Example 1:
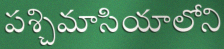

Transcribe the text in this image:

పశ్చిమాసియాలోని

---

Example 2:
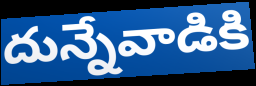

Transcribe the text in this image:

దున్నేవాడికి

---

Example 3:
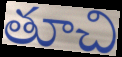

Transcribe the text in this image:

తూచి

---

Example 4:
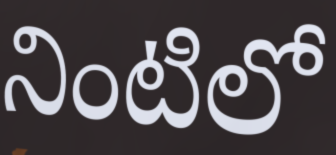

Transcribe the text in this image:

నింటిలో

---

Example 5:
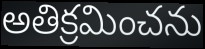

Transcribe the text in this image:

అతిక్రమించను